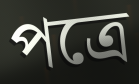
পত্রে